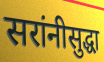
सरांनीसुद्धा